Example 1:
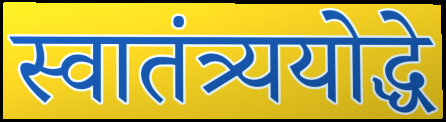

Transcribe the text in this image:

स्वातंत्र्ययोद्धे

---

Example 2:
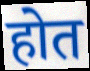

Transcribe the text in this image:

होत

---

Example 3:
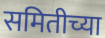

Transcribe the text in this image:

समितीच्‍या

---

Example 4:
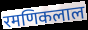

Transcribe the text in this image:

रमणिकलाल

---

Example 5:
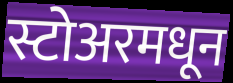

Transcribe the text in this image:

स्टोअरमधून